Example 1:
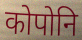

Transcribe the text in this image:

कोपोनि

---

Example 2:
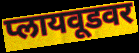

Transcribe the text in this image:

प्लायवूडवर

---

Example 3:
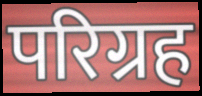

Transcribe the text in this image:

परिग्रह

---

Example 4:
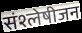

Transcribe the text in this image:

संश्लेषीजन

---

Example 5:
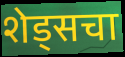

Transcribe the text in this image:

शेड्सचा